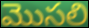
మొసలి